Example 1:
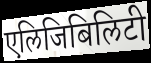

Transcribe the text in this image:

एलिजिबिलिटी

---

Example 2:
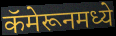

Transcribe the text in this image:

कॅमेरूनमध्ये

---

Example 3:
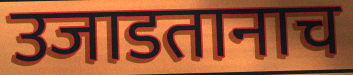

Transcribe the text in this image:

उजाडतानाच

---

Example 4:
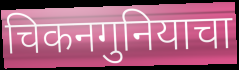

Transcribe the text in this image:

चिकनगुनियाचा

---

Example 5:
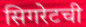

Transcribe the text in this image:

सिगरेटची